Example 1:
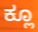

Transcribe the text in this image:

ಕ್ಲೂ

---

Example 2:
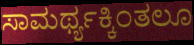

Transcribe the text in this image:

ಸಾಮರ್ಥ್ಯಕ್ಕಿಂತಲೂ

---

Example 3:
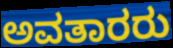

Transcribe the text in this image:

ಅವತಾರರು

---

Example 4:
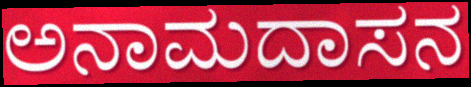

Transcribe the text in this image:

ಅನಾಮದಾಸನ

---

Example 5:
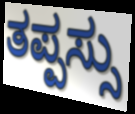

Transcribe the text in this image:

ತಪ್ಪಸ್ಸು